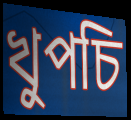
খুপচি